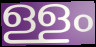
ള്ളം